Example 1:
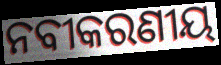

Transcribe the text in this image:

ନବୀକରଣୀୟ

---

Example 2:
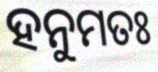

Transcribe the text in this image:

ହନୁମତଃ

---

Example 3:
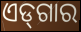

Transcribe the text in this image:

ଏଡ୍‌ଗାର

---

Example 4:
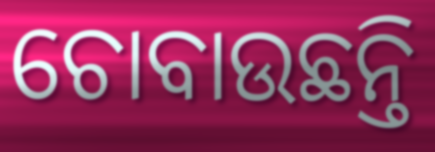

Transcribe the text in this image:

ଚୋବାଉଛନ୍ତି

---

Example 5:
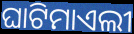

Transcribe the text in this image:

ଘାଟିମାଏଲୀ